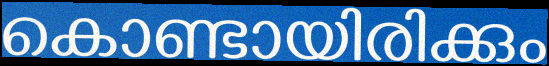
കൊണ്ടായിരിക്കും